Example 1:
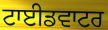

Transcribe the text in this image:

ਟਾਈਡਵਾਟਰ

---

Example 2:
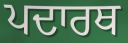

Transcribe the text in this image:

ਪਦਾਰਥ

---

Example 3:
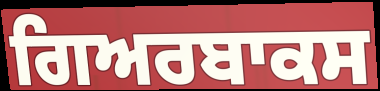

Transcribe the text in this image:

ਗਿਅਰਬਾਕਸ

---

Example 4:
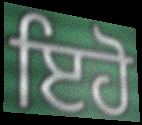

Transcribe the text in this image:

ਇਹੋ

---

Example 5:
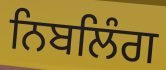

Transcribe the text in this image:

ਨਿਬਲਿੰਗ